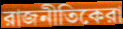
রাজনীতিকেরা